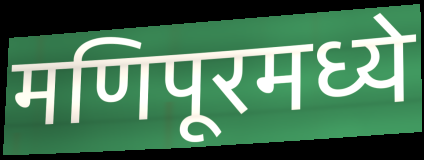
मणिपूरमध्ये